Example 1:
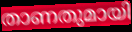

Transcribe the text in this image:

താണതുമായി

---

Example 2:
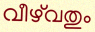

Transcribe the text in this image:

വീഴ്‌വതും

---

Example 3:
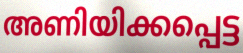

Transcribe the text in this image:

അണിയിക്കപ്പെട്ട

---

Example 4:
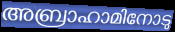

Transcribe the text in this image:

അബ്രാഹാമിനോടു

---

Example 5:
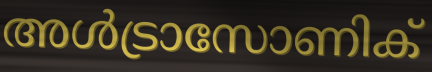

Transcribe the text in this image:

അൾട്രാസോണിക്